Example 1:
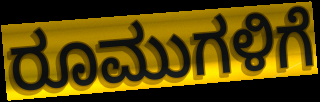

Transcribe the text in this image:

ರೂಮುಗಳಿಗೆ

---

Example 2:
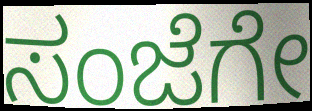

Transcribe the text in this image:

ಸಂಜೆಗೇ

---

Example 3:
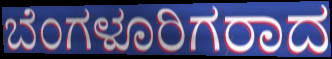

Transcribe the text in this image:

ಬೆಂಗಳೂರಿಗರಾದ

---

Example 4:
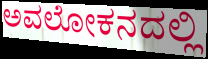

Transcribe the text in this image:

ಅವಲೋಕನದಲ್ಲಿ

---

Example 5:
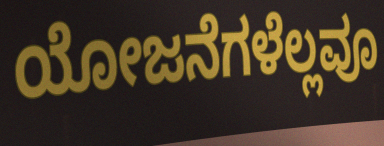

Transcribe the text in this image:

ಯೋಜನೆಗಳೆಲ್ಲವೂ